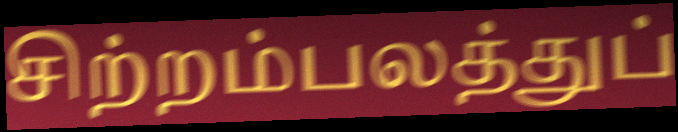
சிற்றம்பலத்துப்